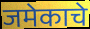
जमेकाचे